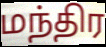
மந்திர